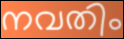
നവതിം